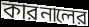
কারনালের